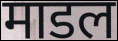
माडल